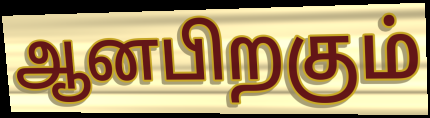
ஆனபிறகும்